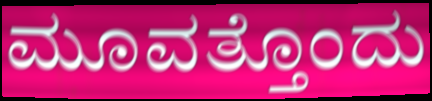
ಮೂವತ್ತೊಂದು